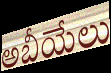
అబీయేలు